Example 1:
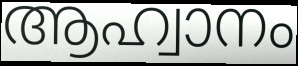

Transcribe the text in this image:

ആഹ്വാനം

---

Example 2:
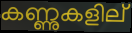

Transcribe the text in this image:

കണ്ണുകളില്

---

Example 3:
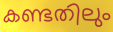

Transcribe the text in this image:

കണ്ടതിലും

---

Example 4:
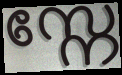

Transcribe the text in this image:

സ്നേ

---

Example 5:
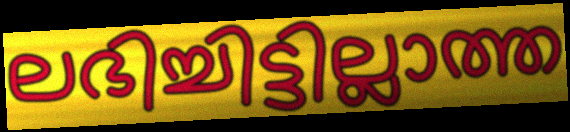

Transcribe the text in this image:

ലഭിച്ചിട്ടില്ലാത്ത